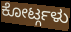
ಕೋರ್ಟ್ಗಳು